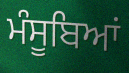
ਮੰਸੂਬਿਆਂ